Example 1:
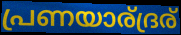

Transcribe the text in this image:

പ്രണയാര്ദ്രര്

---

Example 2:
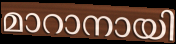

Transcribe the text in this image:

മാറാനായി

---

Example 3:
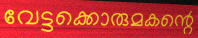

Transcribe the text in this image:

വേട്ടക്കൊരുമകന്റെ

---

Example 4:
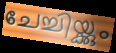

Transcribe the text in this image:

ചേച്ചിയ്ക്കും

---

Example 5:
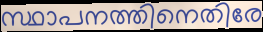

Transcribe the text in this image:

സ്ഥാപനത്തിനെതിരേ